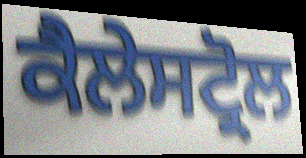
ਕੈਲੇਸਟ੍ਰੋਲ